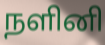
நளினி